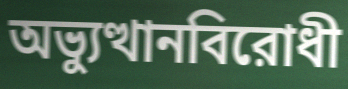
অভ্যুত্থানবিরোধী